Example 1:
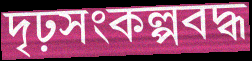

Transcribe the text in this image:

দৃঢ়সংকল্পবদ্ধ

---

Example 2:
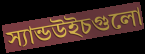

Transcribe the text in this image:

স্যান্ডউইচগুলো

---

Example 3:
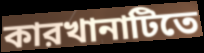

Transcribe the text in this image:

কারখানাটিতে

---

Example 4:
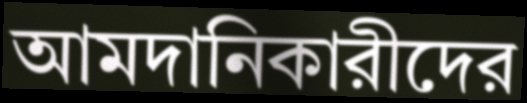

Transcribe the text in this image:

আমদানিকারীদের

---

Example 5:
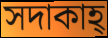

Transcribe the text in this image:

সদাকাহ্